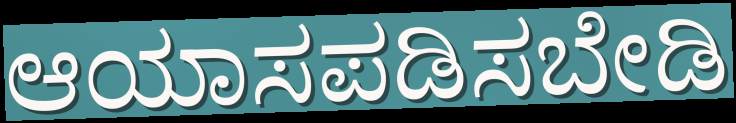
ಆಯಾಸಪಡಿಸಬೇಡಿ